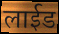
लाईड